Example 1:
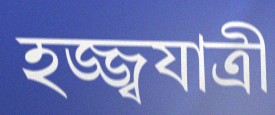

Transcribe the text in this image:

হজ্জ্বযাত্রী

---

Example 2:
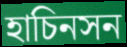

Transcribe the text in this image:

হাচিনসন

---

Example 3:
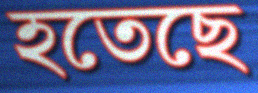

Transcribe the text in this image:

হতেছে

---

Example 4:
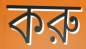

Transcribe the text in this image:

করু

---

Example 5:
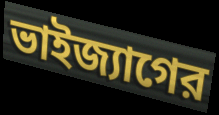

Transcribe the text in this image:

ভাইজ্যাগের